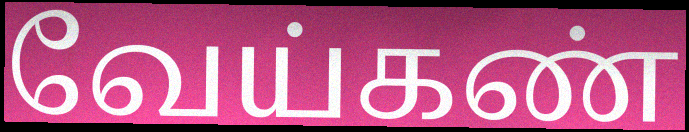
வேய்கண்